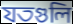
যতগুলি